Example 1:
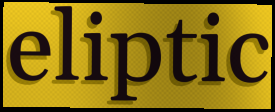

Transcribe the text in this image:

eliptic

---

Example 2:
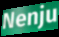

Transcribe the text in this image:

Nenju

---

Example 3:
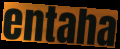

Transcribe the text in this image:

entaha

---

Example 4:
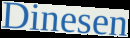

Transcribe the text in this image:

Dinesen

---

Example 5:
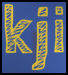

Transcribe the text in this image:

kji